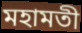
মহামতী